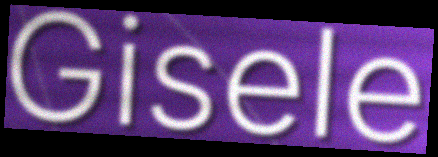
Gisele